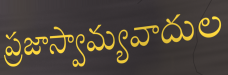
ప్రజాస్వామ్యవాదుల